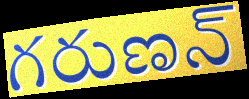
గరుణన్